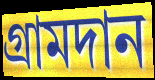
গ্রামদান